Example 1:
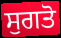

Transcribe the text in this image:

ਸੁਗਤੋ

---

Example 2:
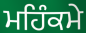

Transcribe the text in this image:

ਮਹਿੰਕਮੇ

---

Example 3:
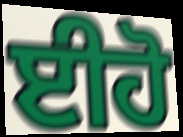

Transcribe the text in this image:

ਈਹੋ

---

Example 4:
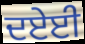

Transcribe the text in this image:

ਦਏਈ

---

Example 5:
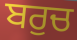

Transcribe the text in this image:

ਬਰੁਚ